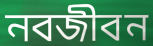
নবজীবন